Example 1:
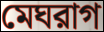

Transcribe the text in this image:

মেঘরাগ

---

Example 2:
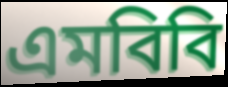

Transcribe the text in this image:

এমবিবি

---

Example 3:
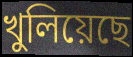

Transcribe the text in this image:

খুলিয়েছে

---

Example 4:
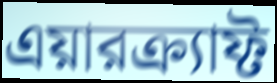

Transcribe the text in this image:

এয়ারক্র্যাফ্ট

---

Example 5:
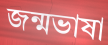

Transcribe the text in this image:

জন্মভাষা